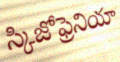
స్కిజోఫ్రెనియా